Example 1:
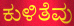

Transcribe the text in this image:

ಕುಳಿತೆವು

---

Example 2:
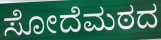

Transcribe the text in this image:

ಸೋದೆಮಠದ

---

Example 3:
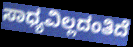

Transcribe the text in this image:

ಸಾಧ್ಯವಿಲ್ಲದಂತಿದೆ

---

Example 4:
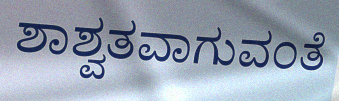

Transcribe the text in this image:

ಶಾಶ್ವತವಾಗುವಂತೆ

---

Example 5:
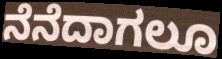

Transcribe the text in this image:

ನೆನೆದಾಗಲೂ